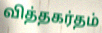
வித்தகர்தம்